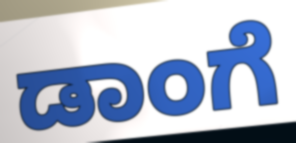
ಡಾಂಗೆ